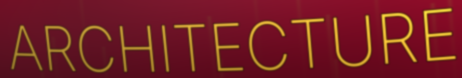
ARCHITECTURE